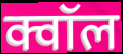
क्वॉल